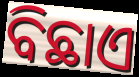
ବିଛାଏ